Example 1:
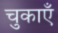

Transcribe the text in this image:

चुकाएँ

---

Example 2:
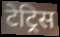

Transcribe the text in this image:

टेट्रिस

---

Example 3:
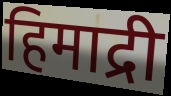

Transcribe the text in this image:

हिमाद्री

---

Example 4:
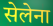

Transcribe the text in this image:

सेलेना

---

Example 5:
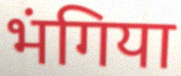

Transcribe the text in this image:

भंगिया